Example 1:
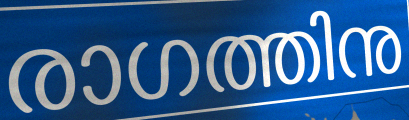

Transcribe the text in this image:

രാഗത്തിനു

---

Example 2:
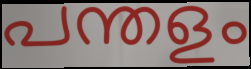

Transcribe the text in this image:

പന്തളം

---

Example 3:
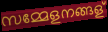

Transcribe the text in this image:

സമ്മേളനങ്ങള്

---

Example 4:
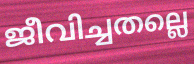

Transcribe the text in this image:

ജീവിച്ചതല്ലെ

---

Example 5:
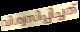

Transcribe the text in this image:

വിശ്വസിപ്പിച്ചത്